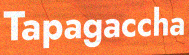
Tapagaccha